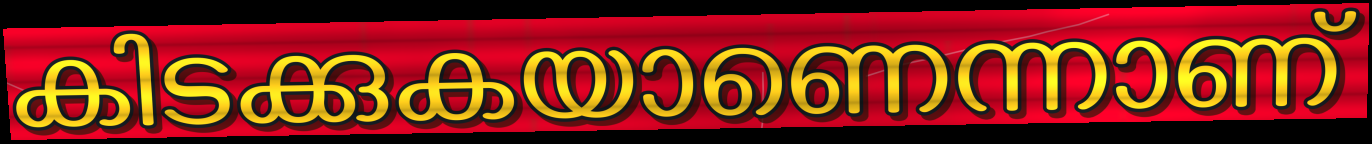
കിടക്കുകയാണെന്നാണ്